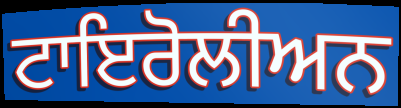
ਟਾਇਰੋਲੀਅਨ